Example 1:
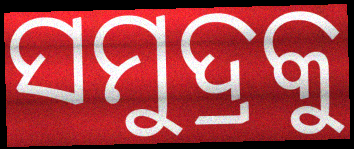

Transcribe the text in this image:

ସମୁଦ୍ରକୁ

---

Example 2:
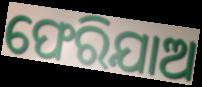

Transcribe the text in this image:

ଫେରିଯାଅ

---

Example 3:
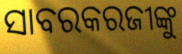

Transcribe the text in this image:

ସାବରକରଜୀଙ୍କୁ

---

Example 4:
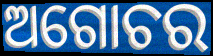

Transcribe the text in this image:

ଅଗୋଚର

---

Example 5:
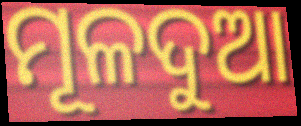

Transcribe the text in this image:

ମୂଳଦୁଆ